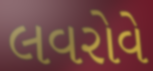
લવરોવે